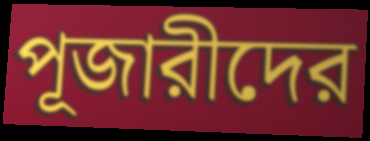
পূজারীদের